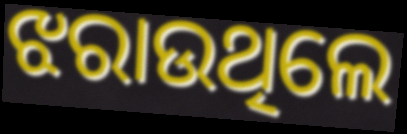
ଝରାଉଥିଲେ